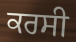
ਕਰਸੀ